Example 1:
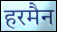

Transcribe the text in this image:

हरमैन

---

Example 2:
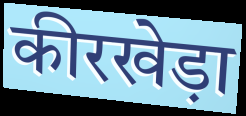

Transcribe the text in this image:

कीरखेड़ा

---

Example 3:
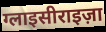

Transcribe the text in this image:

ग्लाइसीराइज़ा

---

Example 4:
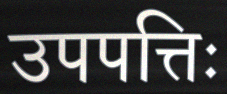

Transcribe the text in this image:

उपपत्तिः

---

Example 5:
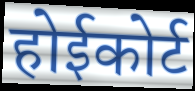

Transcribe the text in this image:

होईकोर्ट